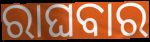
ରାଘବାର